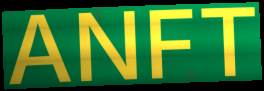
ANFT